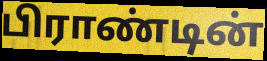
பிராண்டின்